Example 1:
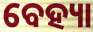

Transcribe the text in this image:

ବେହ୍ୟା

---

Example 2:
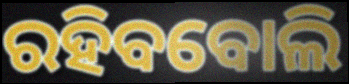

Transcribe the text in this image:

ରହିବବୋଲି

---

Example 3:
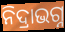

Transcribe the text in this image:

ନିଦ୍ରାଭଗ୍ନ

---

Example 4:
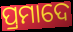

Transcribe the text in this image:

ପ୍ରମାଦେ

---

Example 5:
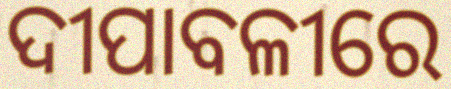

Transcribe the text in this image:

ଦୀପାବଳୀରେ